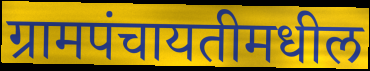
ग्रामपंचायतीमधील